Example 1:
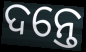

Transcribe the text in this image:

ଦନ୍ତେ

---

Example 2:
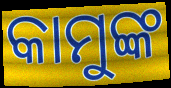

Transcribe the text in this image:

କାମୁଙ୍କ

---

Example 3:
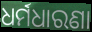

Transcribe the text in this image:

ଧର୍ମଧାରଣା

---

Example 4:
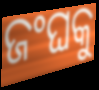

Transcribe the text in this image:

ଜଂଘକୁ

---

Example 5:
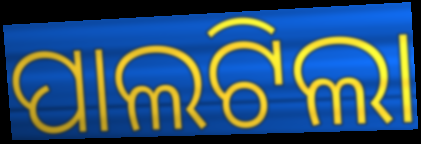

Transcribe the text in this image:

ପାଲଟିଲା